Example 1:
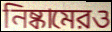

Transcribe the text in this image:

নিষ্কামেরও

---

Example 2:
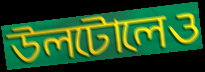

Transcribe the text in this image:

উলটোলেও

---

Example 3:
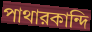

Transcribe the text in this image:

পাথারকান্দি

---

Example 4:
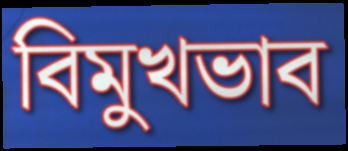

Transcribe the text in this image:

বিমুখভাব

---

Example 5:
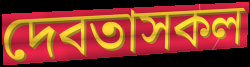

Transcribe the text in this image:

দেবতাসকল